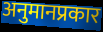
अनुमानप्रकार